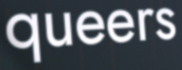
queers